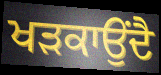
ਖੜਕਾਉਂਦੈ